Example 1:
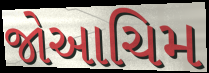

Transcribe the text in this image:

જોઆચિમ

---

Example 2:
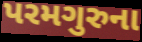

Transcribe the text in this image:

પરમગુરુના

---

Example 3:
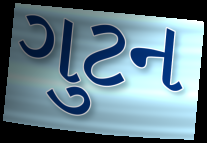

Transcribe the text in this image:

ગુટન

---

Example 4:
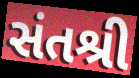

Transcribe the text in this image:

સંતશ્રી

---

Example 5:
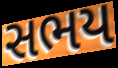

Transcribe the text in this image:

સભય